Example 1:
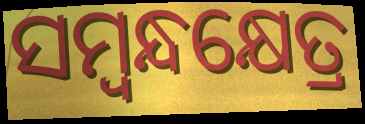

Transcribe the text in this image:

ସମ୍ବନ୍ଧକ୍ଷେତ୍ର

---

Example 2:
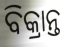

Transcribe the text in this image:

ବିକ୍ରାନ୍ତ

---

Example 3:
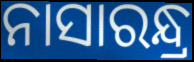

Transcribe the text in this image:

ନାସାରନ୍ଧ୍ର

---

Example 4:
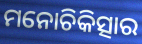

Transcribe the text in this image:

ମନୋଚିକିତ୍ସାର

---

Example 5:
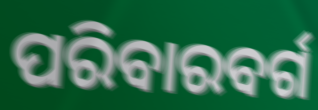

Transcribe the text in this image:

ପରିବାରବର୍ଗ